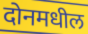
दोनमधील